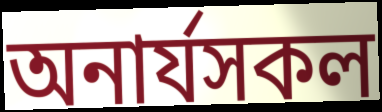
অনাৰ্যসকল